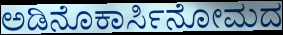
ಅಡಿನೊಕಾರ್ಸಿನೋಮದ